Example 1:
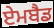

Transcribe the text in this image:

ਏਮਬੈਡ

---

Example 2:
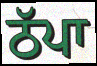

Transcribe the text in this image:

ਠੱਪਾ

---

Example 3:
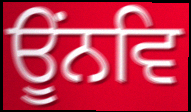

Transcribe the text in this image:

ਊਂਨਵਿ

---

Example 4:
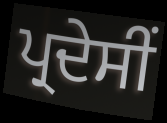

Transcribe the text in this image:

ਪ੍ਰਦੇਸੀਂ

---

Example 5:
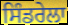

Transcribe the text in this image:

ਸਿੰਡਰੇਲਾ